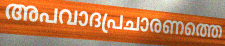
അപവാദപ്രചാരണത്തെ